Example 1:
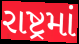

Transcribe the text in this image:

રાષ્ટ્રમાં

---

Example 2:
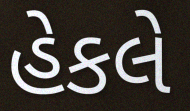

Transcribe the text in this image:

હેકલે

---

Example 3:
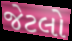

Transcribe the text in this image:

જેટલો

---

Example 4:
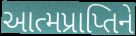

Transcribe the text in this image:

આત્મપ્રાપ્તિને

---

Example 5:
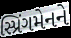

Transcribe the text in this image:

સ્પ્રિંગમેનને